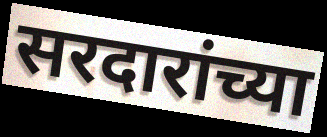
सरदारांच्या